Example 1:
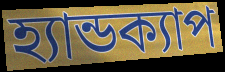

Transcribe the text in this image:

হ্যান্ডক্যাপ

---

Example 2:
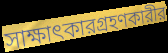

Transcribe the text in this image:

সাক্ষাৎকারগ্রহণকারীর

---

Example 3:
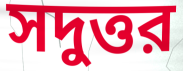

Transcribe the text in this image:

সদুত্তর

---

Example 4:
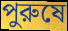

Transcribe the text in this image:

পুরুষে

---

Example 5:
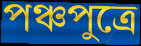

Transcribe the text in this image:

পঞ্চপুত্রে